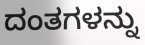
ದಂತಗಳನ್ನು